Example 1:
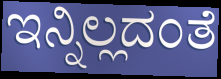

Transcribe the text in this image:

ಇನ್ನಿಲ್ಲದಂತೆ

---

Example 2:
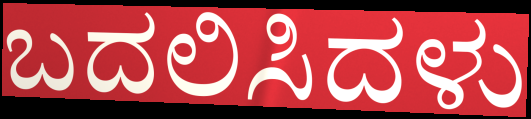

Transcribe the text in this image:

ಬದಲಿಸಿದಳು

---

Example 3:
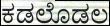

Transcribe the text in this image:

ಕಡಲೊಡಲ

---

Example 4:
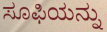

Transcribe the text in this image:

ಸೂಫಿಯನ್ನು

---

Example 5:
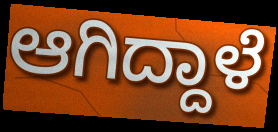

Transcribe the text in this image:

ಆಗಿದ್ದಾಳೆ